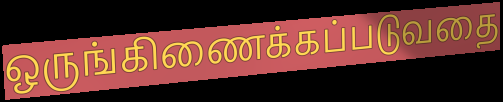
ஒருங்கிணைக்கப்படுவதை